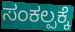
ಸಂಕಲ್ಪಕ್ಕೆ